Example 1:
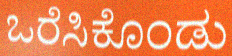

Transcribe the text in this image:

ಒರೆಸಿಕೊಂಡು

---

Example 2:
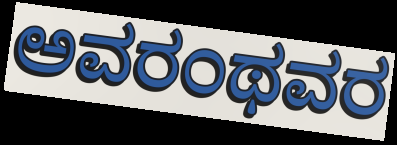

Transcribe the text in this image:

ಅವರಂಥವರ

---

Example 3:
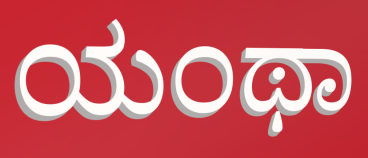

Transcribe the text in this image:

ಯಂಥಾ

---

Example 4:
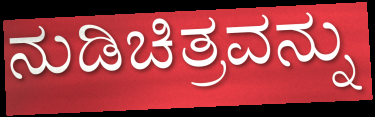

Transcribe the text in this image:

ನುಡಿಚಿತ್ರವನ್ನು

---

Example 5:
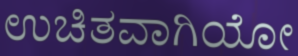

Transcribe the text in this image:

ಉಚಿತವಾಗಿಯೋ